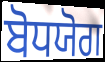
ਬੋਧਯੋਗ